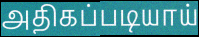
அதிகப்படியாய்